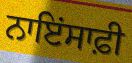
ਨਾਇਂਸਾਫ਼ੀ